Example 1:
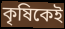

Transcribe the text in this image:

কৃষিকেই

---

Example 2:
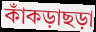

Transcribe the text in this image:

কাঁকড়াছড়া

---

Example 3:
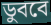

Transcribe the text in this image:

ডুববে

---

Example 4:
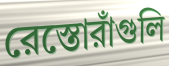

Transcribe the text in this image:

রেস্তোরাঁগুলি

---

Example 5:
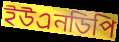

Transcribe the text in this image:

ইউএনডিপি